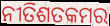
ନୀତିଶତକମର